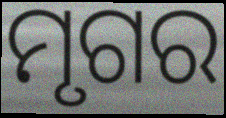
ମୃଗର